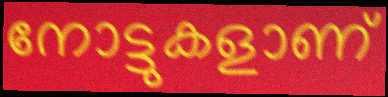
നോട്ടുകളാണ്